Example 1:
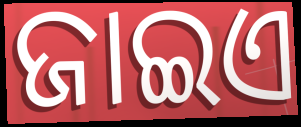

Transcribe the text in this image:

ଜାଇଏ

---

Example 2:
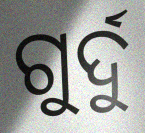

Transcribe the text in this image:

ଗୁର୍ଦୁ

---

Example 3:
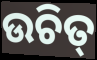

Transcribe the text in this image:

ଉଚିତ୍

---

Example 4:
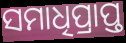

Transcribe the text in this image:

ସମାଧିପ୍ରାପ୍ତ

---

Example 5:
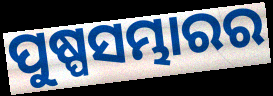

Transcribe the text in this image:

ପୁଷ୍ପସମ୍ଭାରର